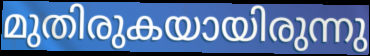
മുതിരുകയായിരുന്നു